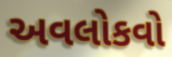
અવલોકવો